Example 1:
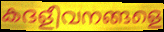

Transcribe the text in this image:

കദളീവനങ്ങളെ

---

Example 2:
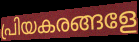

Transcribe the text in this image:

പ്രിയകരങ്ങളേ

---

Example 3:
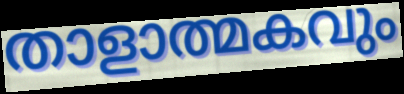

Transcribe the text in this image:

താളാത്മകവും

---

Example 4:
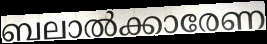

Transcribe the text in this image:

ബലാൽക്കാരേണ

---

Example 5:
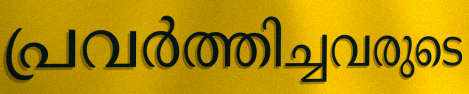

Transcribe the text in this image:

പ്രവർത്തിച്ചവരുടെ